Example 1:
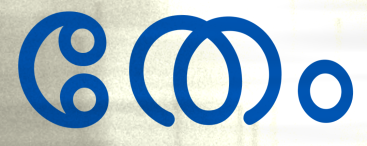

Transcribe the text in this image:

തേം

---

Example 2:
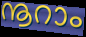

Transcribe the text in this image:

നൂറാം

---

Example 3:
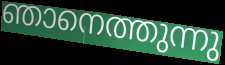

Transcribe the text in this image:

ഞാനെത്തുന്നു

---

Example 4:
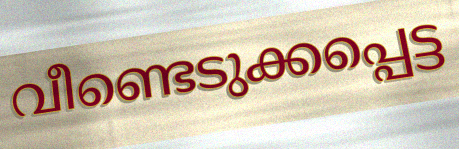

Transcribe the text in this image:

വീണ്ടെടുക്കപ്പെട്ട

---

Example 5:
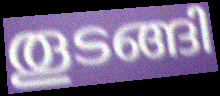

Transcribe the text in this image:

തൂടങ്ങി